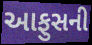
આફુસની